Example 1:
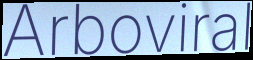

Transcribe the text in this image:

Arboviral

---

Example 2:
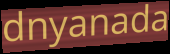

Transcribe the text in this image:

dnyanada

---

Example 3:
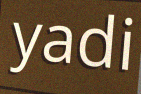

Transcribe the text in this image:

yadi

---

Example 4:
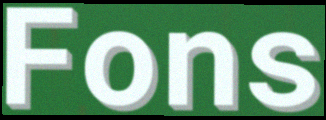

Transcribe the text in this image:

Fons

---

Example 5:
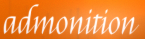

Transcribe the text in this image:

admonition